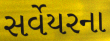
સર્વેયરના